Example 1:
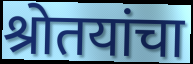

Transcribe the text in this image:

श्रोतयांचा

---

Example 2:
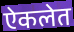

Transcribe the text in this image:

ऐकलेत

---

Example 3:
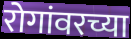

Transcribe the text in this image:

रोगांवरच्या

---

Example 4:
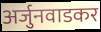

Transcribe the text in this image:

अर्जुनवाडकर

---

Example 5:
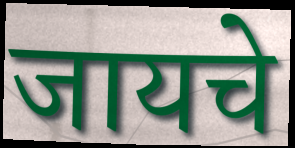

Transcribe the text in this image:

जायचे